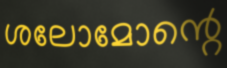
ശലോമോന്റെ